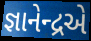
જ્ઞાનેન્દ્રએ